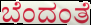
ಬೆಂದಂತೆ